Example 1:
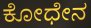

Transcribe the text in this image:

ಕೋಧೇನ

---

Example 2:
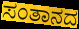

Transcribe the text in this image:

ಸಂತಾನದ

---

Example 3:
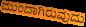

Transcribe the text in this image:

ಮುಂದಾಗಿರುವುದು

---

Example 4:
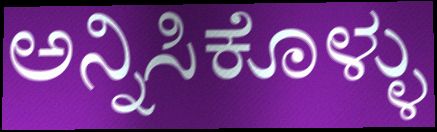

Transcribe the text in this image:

ಅನ್ನಿಸಿಕೊಳ್ಳು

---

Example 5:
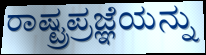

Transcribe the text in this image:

ರಾಷ್ಟ್ರಪ್ರಜ್ಞೆಯನ್ನು